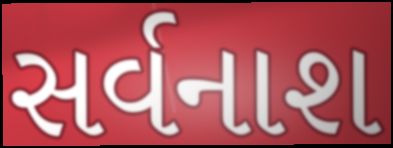
સર્વનાશ